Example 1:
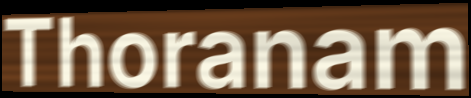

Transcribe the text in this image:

Thoranam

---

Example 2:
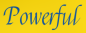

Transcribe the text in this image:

Powerful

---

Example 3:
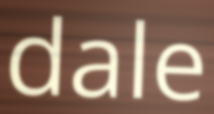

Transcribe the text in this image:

dale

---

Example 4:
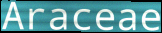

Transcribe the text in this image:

Araceae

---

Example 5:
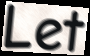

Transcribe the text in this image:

Let